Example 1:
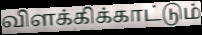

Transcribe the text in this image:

விளக்கிக்காட்டும்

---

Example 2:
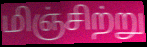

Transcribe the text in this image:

மிஞ்சிற்று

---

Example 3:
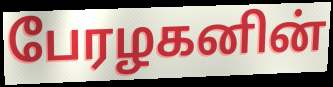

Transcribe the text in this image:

பேரழகனின்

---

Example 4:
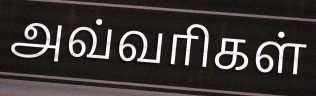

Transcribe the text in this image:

அவ்வரிகள்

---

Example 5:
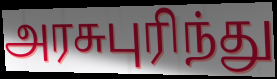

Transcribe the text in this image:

அரசுபுரிந்து